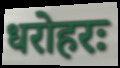
धरोहरः